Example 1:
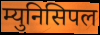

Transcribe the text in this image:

म्युनिसिपल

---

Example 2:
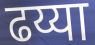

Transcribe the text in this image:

ढय्या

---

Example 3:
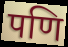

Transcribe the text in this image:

पणि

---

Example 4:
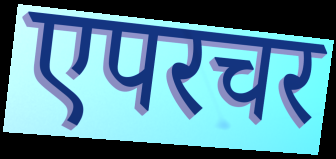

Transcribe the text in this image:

एपरचर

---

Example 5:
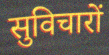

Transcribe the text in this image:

सुविचारों